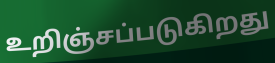
உறிஞ்சப்படுகிறது